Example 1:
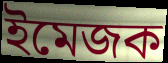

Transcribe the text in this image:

ইমেজক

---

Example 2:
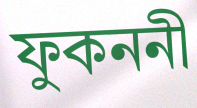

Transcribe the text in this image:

ফুকননী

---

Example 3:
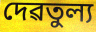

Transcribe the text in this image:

দেৱতুল্য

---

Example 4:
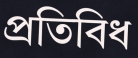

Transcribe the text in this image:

প্ৰতিবিধ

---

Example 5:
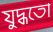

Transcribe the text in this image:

যুদ্ধতো